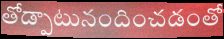
తోడ్పాటునందించడంతో